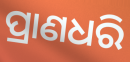
ପ୍ରାଣଧରି